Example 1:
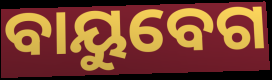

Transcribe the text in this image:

ବାୟୁବେଗ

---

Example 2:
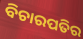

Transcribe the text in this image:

ବିଚାରପତିର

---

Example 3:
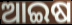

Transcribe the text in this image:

ଆଇଷ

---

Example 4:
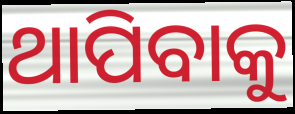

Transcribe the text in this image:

ଥାପିବାକୁ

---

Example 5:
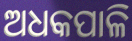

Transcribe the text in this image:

ଅଧକପାଳି